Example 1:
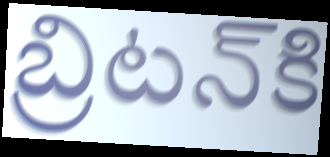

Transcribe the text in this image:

బ్రిటన్‌కి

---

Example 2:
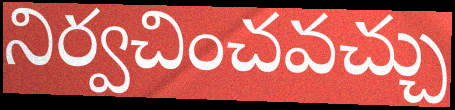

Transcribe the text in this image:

నిర్వచించవచ్చు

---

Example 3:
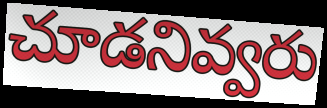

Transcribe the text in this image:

చూడనివ్వరు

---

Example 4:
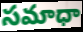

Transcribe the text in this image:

సమాధా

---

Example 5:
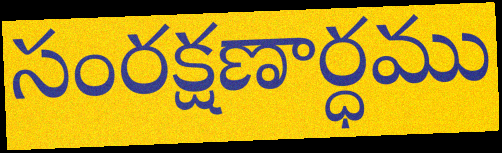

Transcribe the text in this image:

సంరక్షణార్ధము